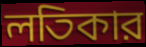
লতিকার